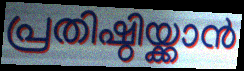
പ്രതിഷ്ഠിയ്ക്കാൻ